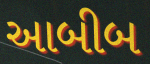
આબીબ